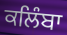
ਕਲਿੰਬਾ